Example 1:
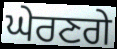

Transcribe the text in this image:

ਘੇਰਣਗੇ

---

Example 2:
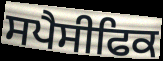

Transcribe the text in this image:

ਸਪੈਸੀਫਿਕ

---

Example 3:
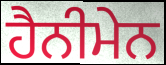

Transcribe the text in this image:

ਹੈਨੀਮੇਨ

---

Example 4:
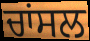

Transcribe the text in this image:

ਚਾਂਸਲ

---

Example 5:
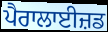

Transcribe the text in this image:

ਪੈਰਾਲਾਈਜ਼ਡ